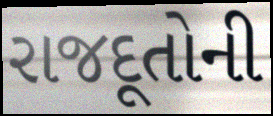
રાજદૂતોની